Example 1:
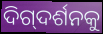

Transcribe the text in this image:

ଦିଗ୍‌ଦର୍ଶନକୁ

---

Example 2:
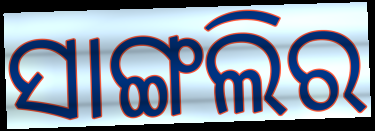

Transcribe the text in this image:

ସାଙ୍ଗଲିର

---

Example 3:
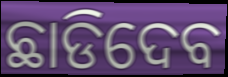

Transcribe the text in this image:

ଛାଡିଦେବ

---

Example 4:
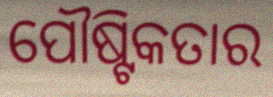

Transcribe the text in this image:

ପୌଷ୍ଟିକତାର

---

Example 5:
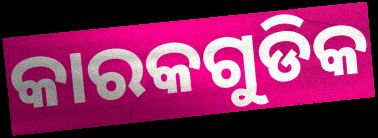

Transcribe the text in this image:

କାରକଗୁଡିକ